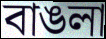
বাঙলা